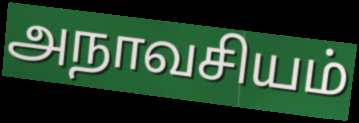
அநாவசியம்